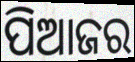
ପିଆଜର